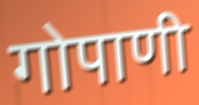
गोपाणी